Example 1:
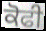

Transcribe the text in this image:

ਕੋਫੀ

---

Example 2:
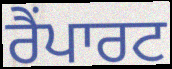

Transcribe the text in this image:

ਰੈਂਪਾਰਟ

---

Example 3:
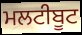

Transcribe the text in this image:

ਮਲਟੀਬੂਟ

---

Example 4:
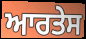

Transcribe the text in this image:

ਆਰਤੇਸ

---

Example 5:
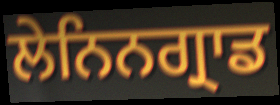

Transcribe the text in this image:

ਲੇਨਿਨਗ੍ਰਾਡ